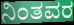
ನಿಂತವರ